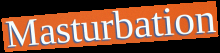
Masturbation